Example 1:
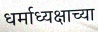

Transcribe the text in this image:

धर्माध्यक्षाच्या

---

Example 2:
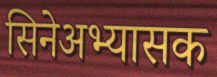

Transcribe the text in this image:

सिनेअभ्यासक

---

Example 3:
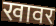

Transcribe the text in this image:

खावर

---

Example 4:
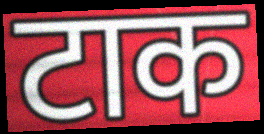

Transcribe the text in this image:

टाक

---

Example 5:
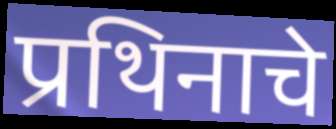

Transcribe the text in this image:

प्रथिनाचे